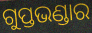
ଗୁପ୍ତଭଣ୍ଡାର